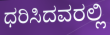
ಧರಿಸಿದವರಲ್ಲಿ